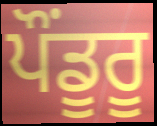
ਪੌਂਡੂਰੂ